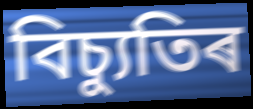
বিচ্যুতিৰ